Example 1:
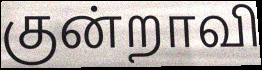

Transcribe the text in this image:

குன்றாவி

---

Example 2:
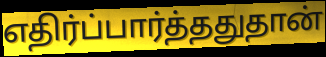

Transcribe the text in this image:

எதிர்ப்பார்த்ததுதான்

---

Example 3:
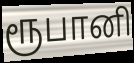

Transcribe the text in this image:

ரூபானி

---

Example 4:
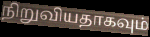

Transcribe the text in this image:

நிறுவியதாகவும்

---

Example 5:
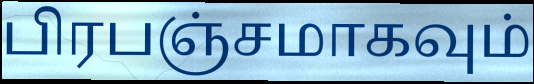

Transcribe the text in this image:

பிரபஞ்சமாகவும்